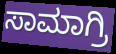
ಸಾಮಾಗ್ರಿ